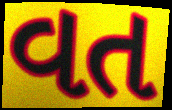
વત